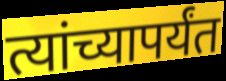
त्यांच्यापर्यंत